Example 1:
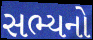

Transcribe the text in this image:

સભ્યનો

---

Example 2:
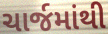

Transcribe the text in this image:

ચાર્જમાંથી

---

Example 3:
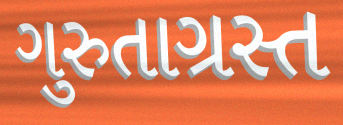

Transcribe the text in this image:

ગુરુતાગ્રસ્ત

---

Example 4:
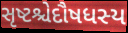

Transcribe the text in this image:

સૃષ્ટશ્ચેદૌષધસ્ય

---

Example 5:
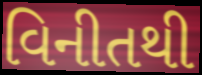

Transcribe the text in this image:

વિનીતથી